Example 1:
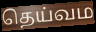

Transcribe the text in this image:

தெய்வம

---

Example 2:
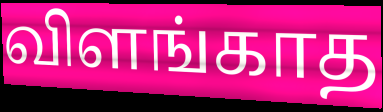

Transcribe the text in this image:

விளங்காத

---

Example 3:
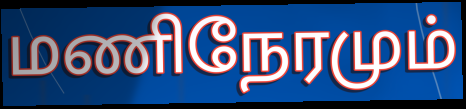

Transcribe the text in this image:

மணிநேரமும்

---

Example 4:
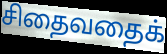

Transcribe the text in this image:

சிதைவதைக்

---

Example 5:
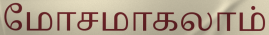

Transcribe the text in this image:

மோசமாகலாம்